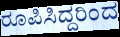
ರೂಪಿಸಿದ್ದರಿಂದ